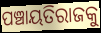
ପଞ୍ଚାୟତିରାଜକୁ